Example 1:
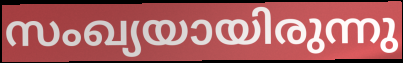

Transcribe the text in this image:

സംഖ്യയായിരുന്നു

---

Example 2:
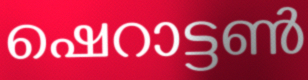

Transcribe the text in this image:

ഷെറാട്ടൺ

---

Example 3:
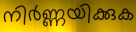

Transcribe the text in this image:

നിർണ്ണയിക്കുക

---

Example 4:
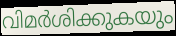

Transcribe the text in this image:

വിമർശിക്കുകയും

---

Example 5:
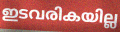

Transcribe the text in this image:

ഇടവരികയില്ല